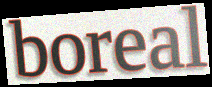
boreal